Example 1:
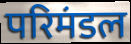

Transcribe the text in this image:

परिमंडल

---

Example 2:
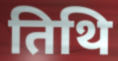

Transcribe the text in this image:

तिथि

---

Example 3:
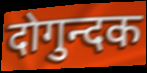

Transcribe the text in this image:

दोगुन्दक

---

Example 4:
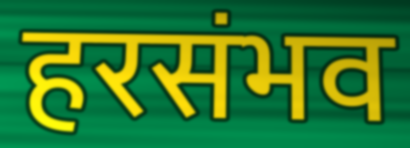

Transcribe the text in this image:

हरसंभव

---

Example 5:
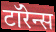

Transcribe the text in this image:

टॉरेन्स